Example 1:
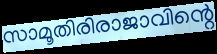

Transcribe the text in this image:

സാമൂതിരിരാജാവിന്റെ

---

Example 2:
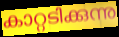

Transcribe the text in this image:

കാറ്റടിക്കുന്നു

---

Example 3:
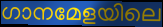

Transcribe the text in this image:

ഗാനമേളയിലെ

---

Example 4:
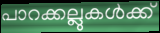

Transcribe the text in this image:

പാറക്കല്ലുകൾക്ക്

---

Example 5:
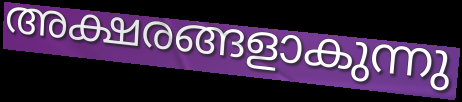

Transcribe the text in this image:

അക്ഷരങ്ങളാകുന്നു